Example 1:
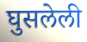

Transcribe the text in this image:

घुसलेली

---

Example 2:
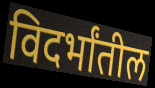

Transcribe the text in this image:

विदर्भांतील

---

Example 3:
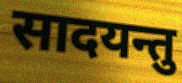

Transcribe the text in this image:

सादयन्तु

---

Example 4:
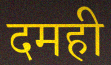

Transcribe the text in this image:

दमही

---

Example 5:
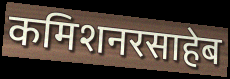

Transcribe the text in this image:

कमिशनरसाहेब